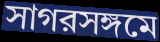
সাগরসঙ্গমে